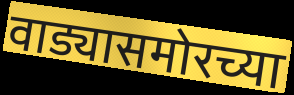
वाड्यासमोरच्या